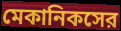
মেকানিকসের